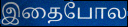
இதைபோல